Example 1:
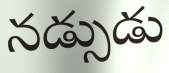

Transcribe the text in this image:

నడ్సుడు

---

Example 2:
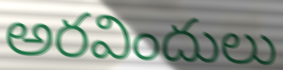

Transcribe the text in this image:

అరవిందులు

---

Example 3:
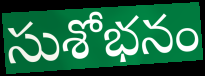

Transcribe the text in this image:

సుశోభనం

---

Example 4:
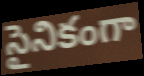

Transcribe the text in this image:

సైనికంగా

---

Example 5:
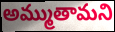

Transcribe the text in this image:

అమ్ముతామని